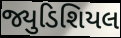
જ્યુડિશિયલ